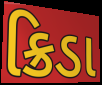
ક્રિડા